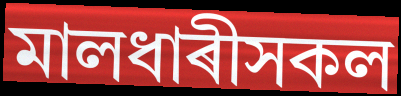
মালধাৰীসকল